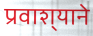
प्रवाश्याने